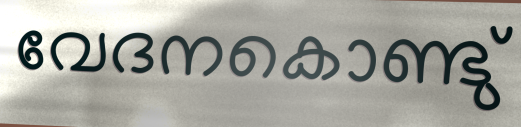
വേദനകൊണ്ടു്